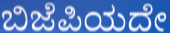
ಬಿಜೆಪಿಯದೇ